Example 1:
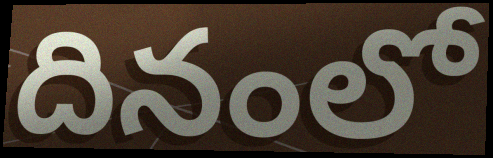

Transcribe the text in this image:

దినంలో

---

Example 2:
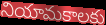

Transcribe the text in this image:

నియామకాలకు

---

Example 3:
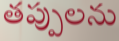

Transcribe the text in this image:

తప్పులను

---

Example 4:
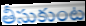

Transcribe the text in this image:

తీసుకుంట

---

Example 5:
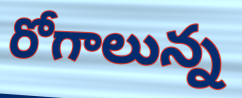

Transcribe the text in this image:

రోగాలున్న